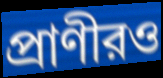
প্রাণীরও